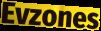
Evzones